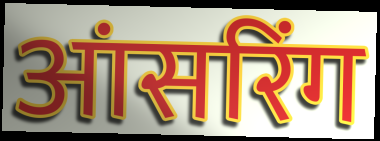
आंसरिंग